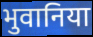
भुवानिया